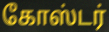
கோஸ்டர்